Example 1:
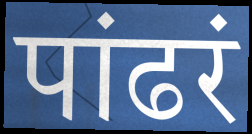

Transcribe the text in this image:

पांढरं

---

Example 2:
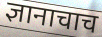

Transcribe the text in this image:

ज्ञानाचाच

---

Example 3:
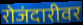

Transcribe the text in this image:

रोजंदारीवर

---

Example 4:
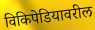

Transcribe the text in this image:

विकिपेडियावरील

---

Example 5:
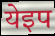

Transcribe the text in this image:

येइप